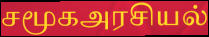
சமூகஅரசியல்